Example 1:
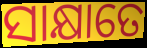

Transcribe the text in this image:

ସାକ୍ଷାତେ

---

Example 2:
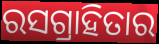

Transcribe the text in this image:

ରସଗ୍ରାହିତାର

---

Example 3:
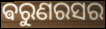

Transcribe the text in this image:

ଵରୁଣରସର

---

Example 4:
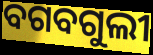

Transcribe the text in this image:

ବଗବଗୁଲୀ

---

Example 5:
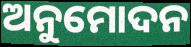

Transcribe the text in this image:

ଅନୁମୋଦନ